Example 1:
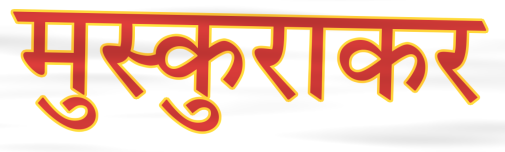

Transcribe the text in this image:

मुस्‍कुराकर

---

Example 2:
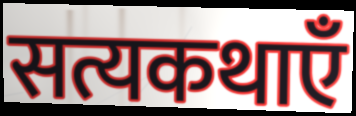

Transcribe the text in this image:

सत्यकथाएँ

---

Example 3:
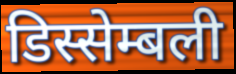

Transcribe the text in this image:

डिस्सेम्बली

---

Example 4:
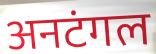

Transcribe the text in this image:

अनटंगल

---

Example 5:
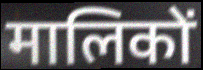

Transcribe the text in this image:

मालिकों